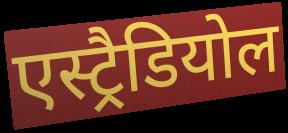
एस्ट्रैडियोल